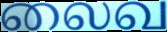
லைவ